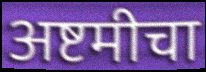
अष्टमीचा